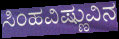
ಸಿಂಹವಿಷ್ಣುವಿನ